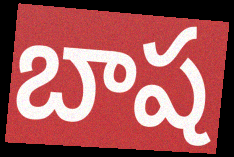
బాష